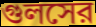
গুলসের